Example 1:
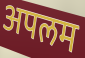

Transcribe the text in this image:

अपलम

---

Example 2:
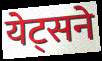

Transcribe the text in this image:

येट्सने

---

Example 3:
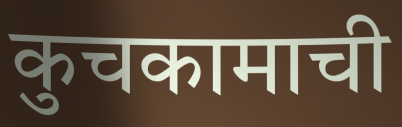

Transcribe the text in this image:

कुचकामाची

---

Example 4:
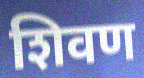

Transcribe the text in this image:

शिवण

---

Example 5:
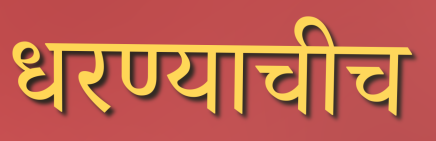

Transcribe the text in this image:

धरण्याचीच